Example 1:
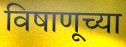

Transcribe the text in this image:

विषाणूच्या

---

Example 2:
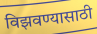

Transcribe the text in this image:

विझवण्यासाठी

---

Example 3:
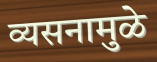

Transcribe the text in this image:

व्यसनामुळे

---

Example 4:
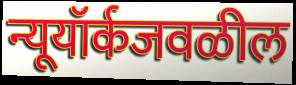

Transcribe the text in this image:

न्यूयॉर्कजवळील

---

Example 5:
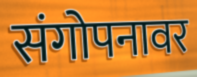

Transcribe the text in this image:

संगोपनावर